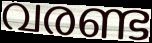
വരണ്ട